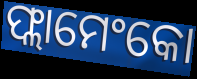
ଫ୍ଲାମେଂକୋ